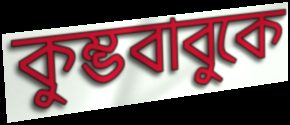
কুম্ভবাবুকে